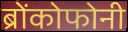
ब्रोंकोफोनी